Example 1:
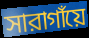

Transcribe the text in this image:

সারাগাঁয়ে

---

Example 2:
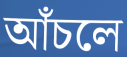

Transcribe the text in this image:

আঁচলে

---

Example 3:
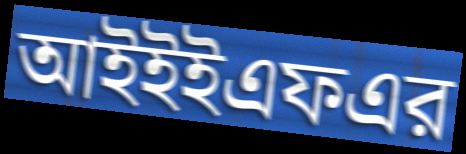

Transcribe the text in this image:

আইইইএফএর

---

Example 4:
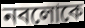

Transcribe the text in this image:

নবলোকে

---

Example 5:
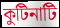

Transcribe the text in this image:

কুটিনাটি